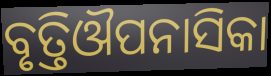
ବୃତ୍ତିଔପନାସିକା